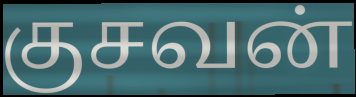
குசவன்